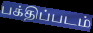
பக்திப்படம்